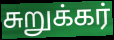
சுறுக்கர்